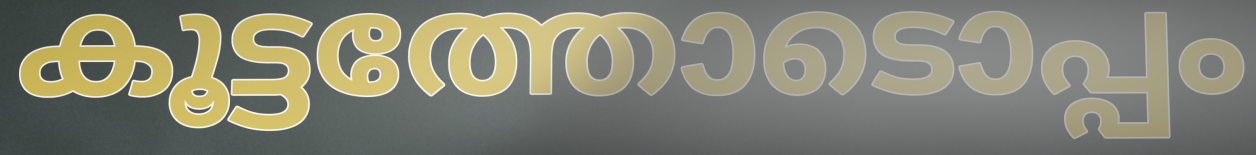
കൂട്ടത്തോടൊപ്പം